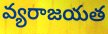
వ్యరాజయత